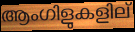
ആംഗിളുകളില്